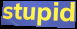
stupid